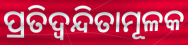
ପ୍ରତିଦ୍ୱନ୍ଦିତାମୂଳକ